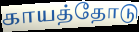
காயத்தோடு